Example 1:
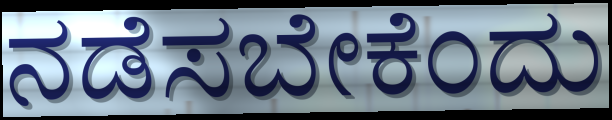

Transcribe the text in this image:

ನಡೆಸಬೇಕೆಂದು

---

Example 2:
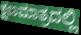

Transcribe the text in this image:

ಕ್ಷಣಮಾತ್ರದಲ್ಲಿ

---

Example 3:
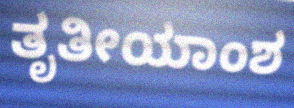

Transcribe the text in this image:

ತೃತೀಯಾಂಶ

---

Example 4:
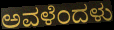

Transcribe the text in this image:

ಅವಳೆಂದಳು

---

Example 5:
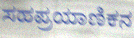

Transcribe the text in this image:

ಸಹಪ್ರಯಾಣಿಕನ